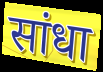
सांधा